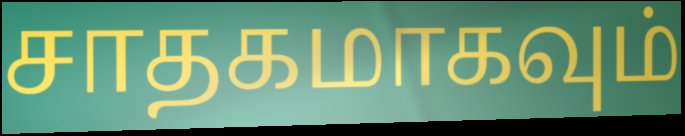
சாதகமாகவும்